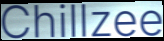
Chillzee